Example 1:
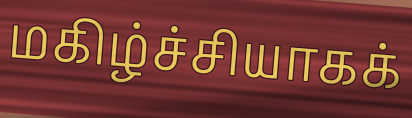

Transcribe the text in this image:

மகிழ்ச்சியாகக்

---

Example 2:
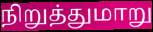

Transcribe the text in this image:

நிறுத்துமாறு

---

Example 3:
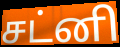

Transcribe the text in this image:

சட்னி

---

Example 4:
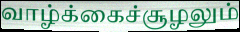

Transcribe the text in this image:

வாழ்க்கைச்சூழலும்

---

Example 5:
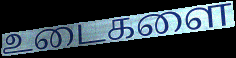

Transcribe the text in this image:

உடைகளை